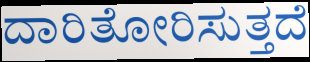
ದಾರಿತೋರಿಸುತ್ತದೆ